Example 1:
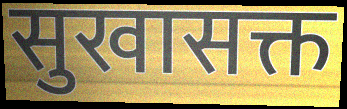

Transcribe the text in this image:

सुखासक्त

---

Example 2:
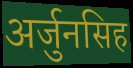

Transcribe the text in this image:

अर्जुनसिह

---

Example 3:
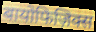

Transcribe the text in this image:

बायोफिज़िक्स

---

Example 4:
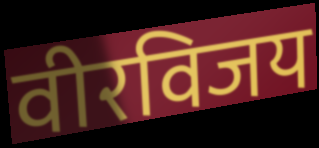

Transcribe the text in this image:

वीरविजय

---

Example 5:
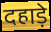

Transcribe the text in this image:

दहाड़े